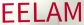
EELAM